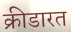
क्रीडारत